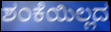
ಶಂಕೆಯಿಲ್ಲದ